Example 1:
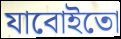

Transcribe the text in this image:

যাবোইতো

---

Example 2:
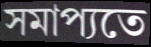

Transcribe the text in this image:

সমাপ্যতে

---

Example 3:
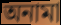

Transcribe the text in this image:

অনামা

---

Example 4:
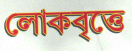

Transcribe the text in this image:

লোকবৃত্তে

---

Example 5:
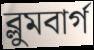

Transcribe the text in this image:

ব্লুমবার্গ